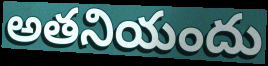
అతనియందు